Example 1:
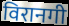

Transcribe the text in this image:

विरानगी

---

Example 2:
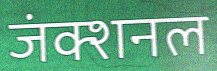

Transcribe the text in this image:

जंक्शनल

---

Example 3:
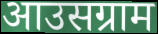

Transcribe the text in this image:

आउसग्राम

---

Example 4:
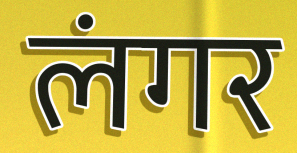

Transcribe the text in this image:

लंगर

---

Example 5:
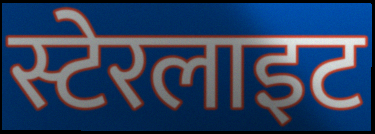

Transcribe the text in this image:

स्टेरलाइट